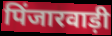
पिंजारवाड़ी